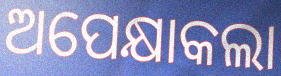
ଅପେକ୍ଷାକଲା